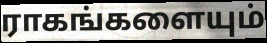
ராகங்களையும்